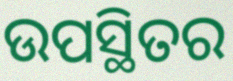
ଉପସ୍ଥିତର